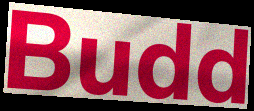
Budd